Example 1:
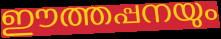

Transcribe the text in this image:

ഈത്തപ്പനയും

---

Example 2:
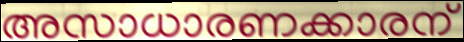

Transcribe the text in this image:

അസാധാരണക്കാരന്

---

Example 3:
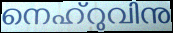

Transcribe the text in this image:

നെഹ്റുവിനു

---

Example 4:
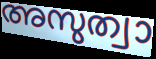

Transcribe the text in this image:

അസുത്വാ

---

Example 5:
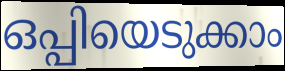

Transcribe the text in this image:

ഒപ്പിയെടുക്കാം